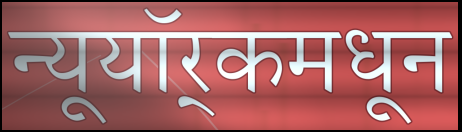
न्यूयॉर्कमधून